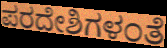
ಪರದೇಶಿಗಳಂತೆ